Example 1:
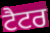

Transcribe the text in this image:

ਟੈਟਰ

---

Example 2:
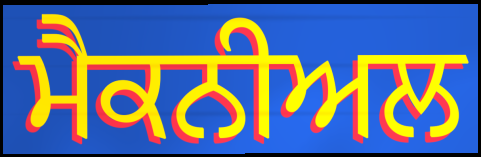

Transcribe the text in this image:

ਮੈਕਨੀਅਲ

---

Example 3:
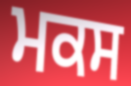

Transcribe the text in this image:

ਮਕਸ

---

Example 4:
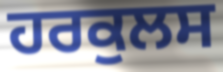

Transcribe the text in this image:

ਹਰਕੁਲਸ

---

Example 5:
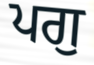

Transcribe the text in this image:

ਪਗੁ